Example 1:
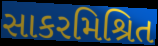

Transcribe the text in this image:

સાકરમિશ્રિત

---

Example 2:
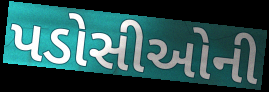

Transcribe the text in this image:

પડોસીઓની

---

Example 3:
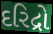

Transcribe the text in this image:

દરિદ્રો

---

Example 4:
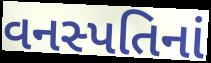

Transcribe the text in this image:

વનસ્પતિનાં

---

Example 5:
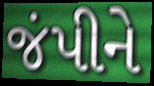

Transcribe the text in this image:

જંપીને